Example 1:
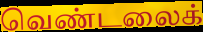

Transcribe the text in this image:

வெண்டலைக்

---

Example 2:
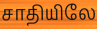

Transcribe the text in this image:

சாதியிலே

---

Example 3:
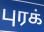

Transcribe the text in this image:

புரக்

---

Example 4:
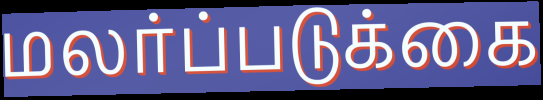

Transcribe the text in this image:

மலர்ப்படுக்கை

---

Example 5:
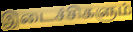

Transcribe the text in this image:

இடைச்சிகளும்